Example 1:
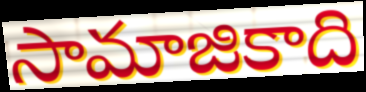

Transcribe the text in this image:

సామాజికాది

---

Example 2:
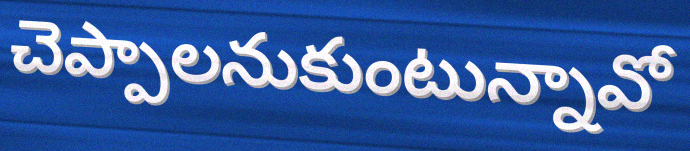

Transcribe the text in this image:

చెప్పాలనుకుంటున్నావో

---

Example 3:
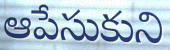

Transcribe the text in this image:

ఆపేసుకుని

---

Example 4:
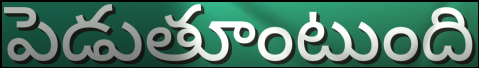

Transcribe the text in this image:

పెడుతూంటుంది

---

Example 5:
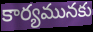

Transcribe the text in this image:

కార్యమునకు